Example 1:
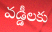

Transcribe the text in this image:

వడ్డీలకు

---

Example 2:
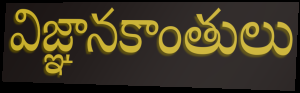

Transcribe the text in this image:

విజ్ఞానకాంతులు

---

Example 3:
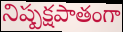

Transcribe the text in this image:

నిష్పక్షపాతంగా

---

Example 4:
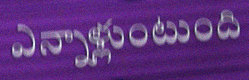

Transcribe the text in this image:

ఎన్నాళ్లుంటుంది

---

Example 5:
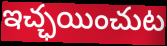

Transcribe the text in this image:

ఇచ్ఛయించుట